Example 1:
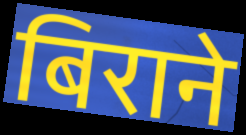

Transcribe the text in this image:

बिराने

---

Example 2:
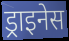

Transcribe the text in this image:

ड्राइनेस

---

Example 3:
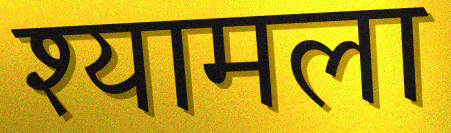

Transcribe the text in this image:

श्यामला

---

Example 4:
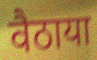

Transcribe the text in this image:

वैठाया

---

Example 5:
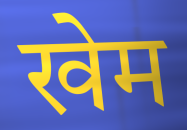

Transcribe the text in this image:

खेम